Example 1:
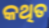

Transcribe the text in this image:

କଥିତ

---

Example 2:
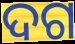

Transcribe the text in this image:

ଦଗ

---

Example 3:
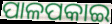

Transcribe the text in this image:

ପାଳପକାଇ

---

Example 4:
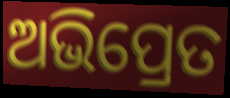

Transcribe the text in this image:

ଅଭିପ୍ରେତ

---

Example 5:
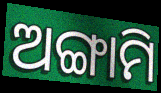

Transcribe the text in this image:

ଅଙ୍ଗାମି